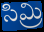
సిమ్రి